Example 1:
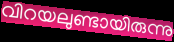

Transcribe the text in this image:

വിറയലുണ്ടായിരുന്നു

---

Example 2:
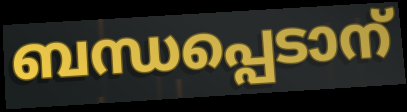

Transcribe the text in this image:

ബന്ധപ്പെടാന്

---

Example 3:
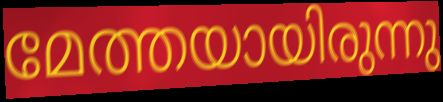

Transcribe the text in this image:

മേത്തയായിരുന്നു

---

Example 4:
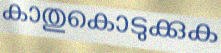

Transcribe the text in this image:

കാതുകൊടുക്കുക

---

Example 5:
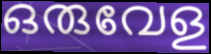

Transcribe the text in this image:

ഒരുവേള